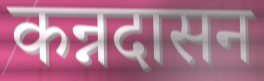
कन्नदासन